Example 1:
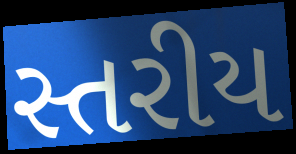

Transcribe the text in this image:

સ્તરીય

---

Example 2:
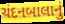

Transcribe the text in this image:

ચંદનબાલાનું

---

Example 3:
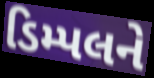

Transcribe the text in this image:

ડિમ્પલને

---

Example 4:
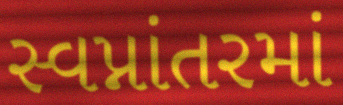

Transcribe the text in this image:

સ્વપ્નાંતરમાં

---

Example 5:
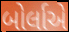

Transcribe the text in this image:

બોર્લાએ